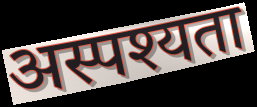
अस्पश्यता